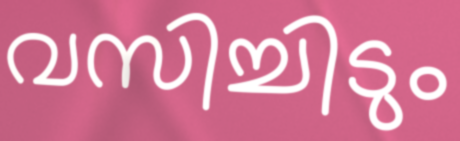
വസിച്ചിടും